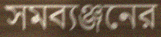
সমব্যঞ্জনের